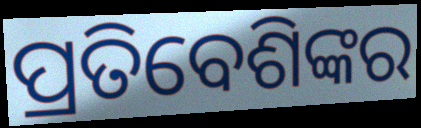
ପ୍ରତିବେଶିଙ୍କର